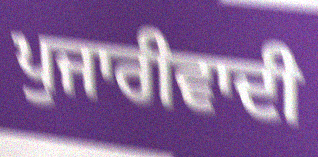
ਪੁਜਾਰੀਵਾਦੀ